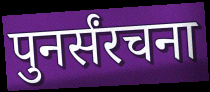
पुनर्संरचना